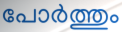
പോർത്തും